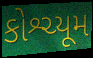
કોશ્ચ્યૂમ